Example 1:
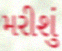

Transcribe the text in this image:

મરીશું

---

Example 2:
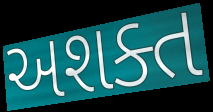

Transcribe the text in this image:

અશક્ત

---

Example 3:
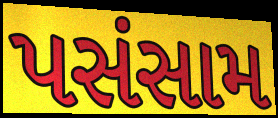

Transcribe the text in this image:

પસંસામ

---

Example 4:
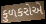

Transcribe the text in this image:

કુળકરોએ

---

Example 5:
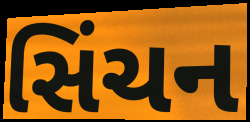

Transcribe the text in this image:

સિંચન